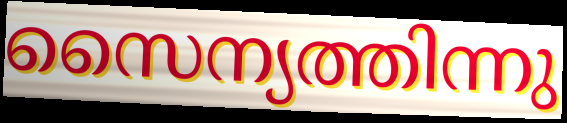
സൈന്യത്തിന്നു